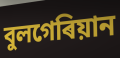
বুলগেৰিয়ান